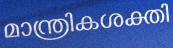
മാന്ത്രികശക്തി